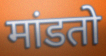
मांडतो